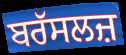
ਬਰੱਸਲਜ਼